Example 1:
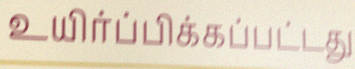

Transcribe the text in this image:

உயிர்ப்பிக்கப்பட்டது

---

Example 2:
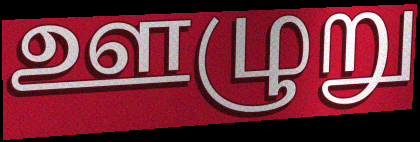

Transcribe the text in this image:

ஊழுறு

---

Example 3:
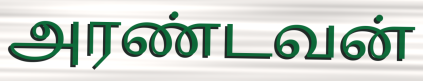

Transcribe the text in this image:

அரண்டவன்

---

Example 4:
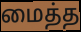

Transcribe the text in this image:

மைத்த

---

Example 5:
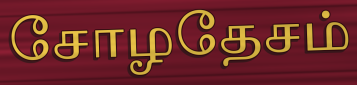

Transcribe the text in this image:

சோழதேசம்